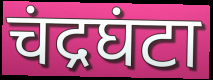
चंद्रघंटा